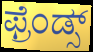
ಫ್ರೆಂಡ್ಸ್